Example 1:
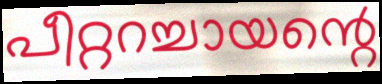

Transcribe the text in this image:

പീറ്ററച്ചായന്റെ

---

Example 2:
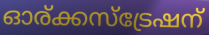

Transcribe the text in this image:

ഓര്ക്കസ്ട്രേഷന്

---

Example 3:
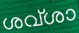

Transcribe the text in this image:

ശവ്ശാ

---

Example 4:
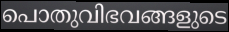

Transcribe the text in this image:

പൊതുവിഭവങ്ങളുടെ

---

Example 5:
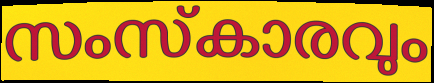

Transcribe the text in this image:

സംസ്‌കാരവും